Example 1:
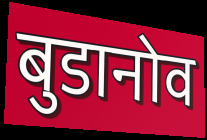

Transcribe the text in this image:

बुडानोव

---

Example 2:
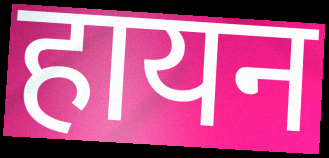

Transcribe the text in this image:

हायन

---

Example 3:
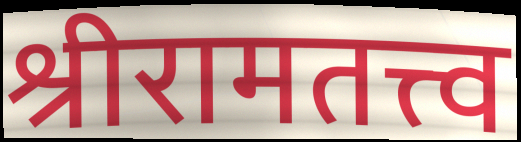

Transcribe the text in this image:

श्रीरामतत्त्व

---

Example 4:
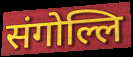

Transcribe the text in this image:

संगोल्लि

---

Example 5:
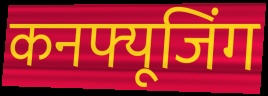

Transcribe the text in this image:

कनफ्यूजिंग